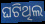
ଘଟିଥିଲ